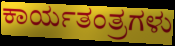
ಕಾರ್ಯತಂತ್ರಗಳು